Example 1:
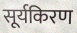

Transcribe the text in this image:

सूर्यकिरण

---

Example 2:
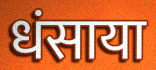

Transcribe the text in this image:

धंसाया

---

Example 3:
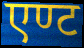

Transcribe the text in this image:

एण्ट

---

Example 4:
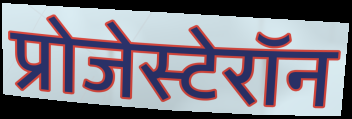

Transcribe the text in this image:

प्रोजेस्टेरॉन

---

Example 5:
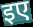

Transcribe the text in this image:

इए